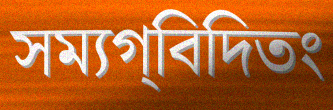
সম্যগ্‌বিদিতং